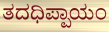
ತದಧಿಪ್ಪಾಯಂ